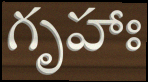
గృహాః